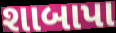
શાબાપા